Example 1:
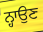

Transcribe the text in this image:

ਨ੍ਹਾਉਣ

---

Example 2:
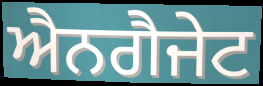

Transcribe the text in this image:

ਐਨਗੈਜੇਟ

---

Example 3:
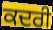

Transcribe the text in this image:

ਕਦਰੀ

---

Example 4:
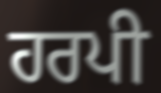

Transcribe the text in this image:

ਹਰਪੀ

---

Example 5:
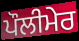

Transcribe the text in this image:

ਪੌਲੀਮੇਰ